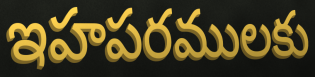
ఇహపరములకు